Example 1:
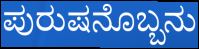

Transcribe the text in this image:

ಪುರುಷನೊಬ್ಬನು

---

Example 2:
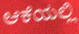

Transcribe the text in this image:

ಆಕೆಯಲ್ಲಿ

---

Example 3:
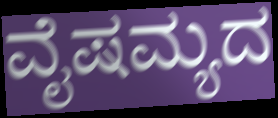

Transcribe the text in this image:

ವೈಷಮ್ಯದ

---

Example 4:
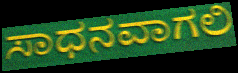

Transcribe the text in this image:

ಸಾಧನವಾಗಲಿ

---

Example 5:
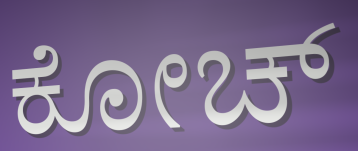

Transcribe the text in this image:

ಕೋಚ್